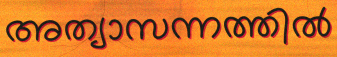
അത്യാസന്നത്തിൽ